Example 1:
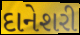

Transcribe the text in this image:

દાનેશરી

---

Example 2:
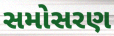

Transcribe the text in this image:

સમોસરણ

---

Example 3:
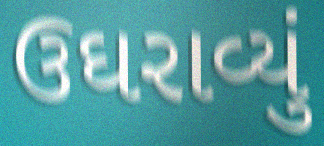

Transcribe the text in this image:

ઉઘરાવ્યું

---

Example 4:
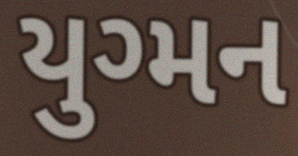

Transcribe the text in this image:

યુગ્મન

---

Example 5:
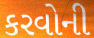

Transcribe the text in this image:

કરવોની